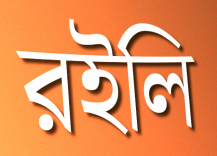
রইলি